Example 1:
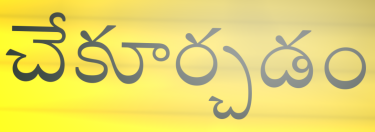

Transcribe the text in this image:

చేకూర్చడం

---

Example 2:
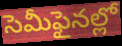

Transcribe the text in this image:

సెమీఫైనల్లో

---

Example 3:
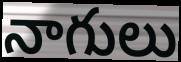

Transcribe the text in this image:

నాగులు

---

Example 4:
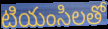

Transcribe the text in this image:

టియంసిలతో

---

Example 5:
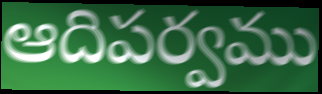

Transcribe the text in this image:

ఆదిపర్వము